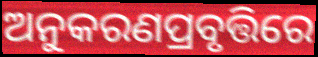
ଅନୁକରଣପ୍ରବୃତ୍ତିରେ